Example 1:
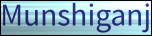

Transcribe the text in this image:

Munshiganj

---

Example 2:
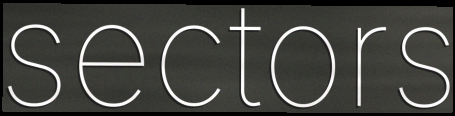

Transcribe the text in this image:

sectors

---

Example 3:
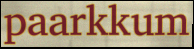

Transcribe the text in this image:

paarkkum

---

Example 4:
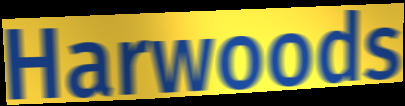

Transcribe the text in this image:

Harwoods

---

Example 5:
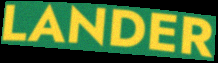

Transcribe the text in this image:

LANDER